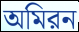
অমিরন